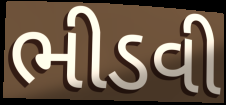
ભીડવી